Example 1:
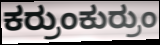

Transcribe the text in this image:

ಕರ್ರುಂಕುರ್ರುಂ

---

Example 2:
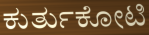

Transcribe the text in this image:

ಕುರ್ತುಕೋಟಿ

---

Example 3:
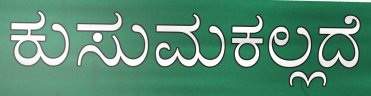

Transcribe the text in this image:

ಕುಸುಮಕಲ್ಲದೆ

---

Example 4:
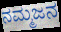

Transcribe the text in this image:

ನಮ್ಮಜನ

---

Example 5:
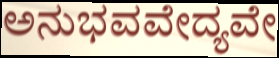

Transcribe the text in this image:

ಅನುಭವವೇದ್ಯವೇ